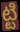
ట్టి